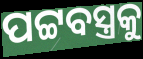
ପଟ୍ଟବସ୍ତ୍ରକୁ